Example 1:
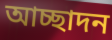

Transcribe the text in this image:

আচ্ছাদন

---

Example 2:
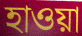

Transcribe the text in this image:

হাওয়া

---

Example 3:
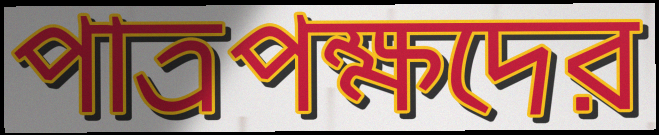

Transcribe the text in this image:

পাত্রপক্ষদের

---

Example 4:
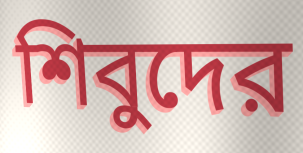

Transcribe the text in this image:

শিবুদের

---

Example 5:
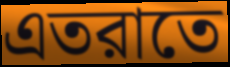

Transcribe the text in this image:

এতরাতে